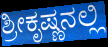
ಶ್ರೀಕೃಷ್ಣನಲ್ಲಿ